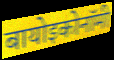
बायोइकोनॉमी